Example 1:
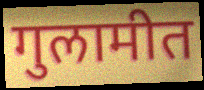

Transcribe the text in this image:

गुलामीत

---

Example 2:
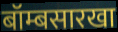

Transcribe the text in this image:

बॉम्बसारखा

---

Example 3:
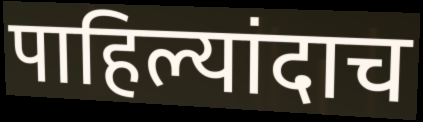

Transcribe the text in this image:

पाहिल्यांदाच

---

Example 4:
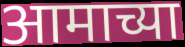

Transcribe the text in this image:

आमाच्या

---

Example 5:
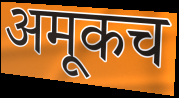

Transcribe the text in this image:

अमूकच